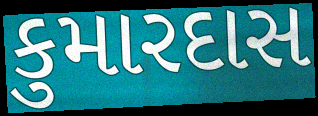
કુમારદાસ